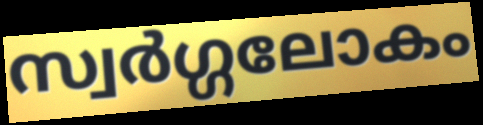
സ്വർഗ്ഗലോകം